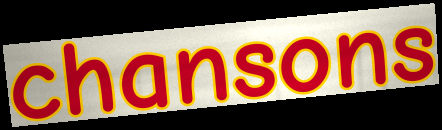
chansons